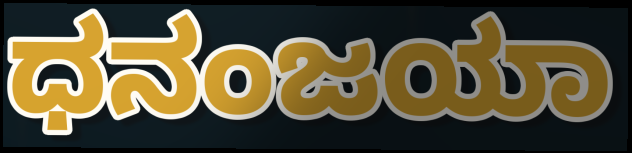
ಧನಂಜಯಾ